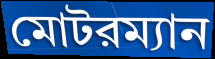
মোটরম্যান